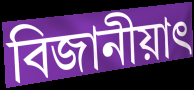
বিজানীয়াৎ